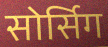
सोर्सिग